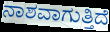
ನಾಶವಾಗುತ್ತಿದೆ